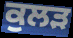
ਕੁਲੜ